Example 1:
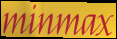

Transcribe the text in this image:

minmax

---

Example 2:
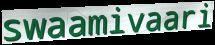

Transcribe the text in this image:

swaamivaari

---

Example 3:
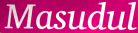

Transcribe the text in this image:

Masudul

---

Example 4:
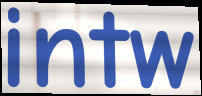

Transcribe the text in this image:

intw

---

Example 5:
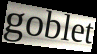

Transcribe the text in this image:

goblet